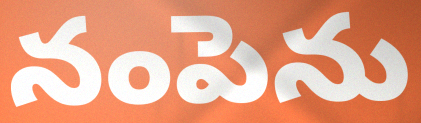
నంపెను